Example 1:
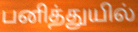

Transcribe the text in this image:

பனித்துயில்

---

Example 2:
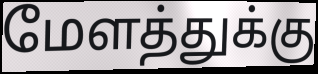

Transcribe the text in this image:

மேளத்துக்கு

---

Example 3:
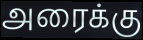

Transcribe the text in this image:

அரைக்கு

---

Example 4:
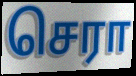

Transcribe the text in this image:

செரா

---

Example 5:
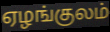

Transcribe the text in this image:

ஏழங்குலம்